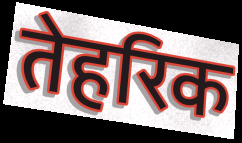
तेहरिक